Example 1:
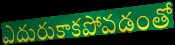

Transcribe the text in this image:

ఎదురుకాకపోవడంతో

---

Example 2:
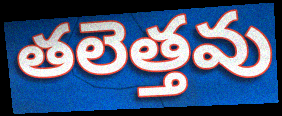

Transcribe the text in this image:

తలెత్తవు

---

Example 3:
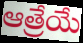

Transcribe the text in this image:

ఆత్రేయే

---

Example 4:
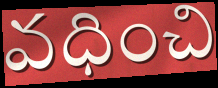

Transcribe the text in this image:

వధించి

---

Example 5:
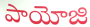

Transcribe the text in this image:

పాయోజి